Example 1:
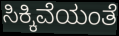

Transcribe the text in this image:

ಸಿಕ್ಕಿವೆಯಂತೆ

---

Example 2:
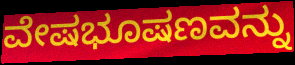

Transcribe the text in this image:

ವೇಷಭೂಷಣವನ್ನು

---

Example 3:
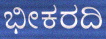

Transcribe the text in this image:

ಭೀಕರದಿ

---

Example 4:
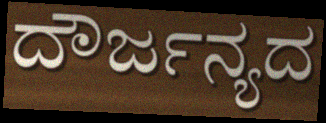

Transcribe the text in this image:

ದೌರ್ಜನ್ಯದ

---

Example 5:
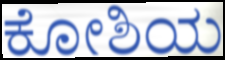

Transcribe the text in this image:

ಕೋಶಿಯ